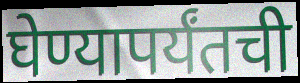
घेण्यापर्यंतची